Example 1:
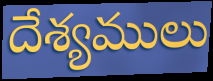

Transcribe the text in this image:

దేశ్యములు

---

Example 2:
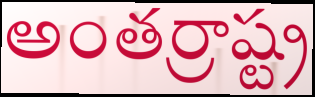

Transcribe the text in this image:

అంతర్రాష్ట్ర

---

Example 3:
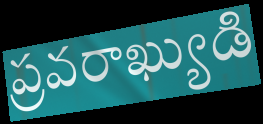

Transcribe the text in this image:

ప్రవరాఖ్యుడి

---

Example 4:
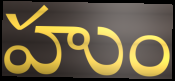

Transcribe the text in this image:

హుం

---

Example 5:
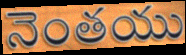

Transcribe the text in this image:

నెంతయు